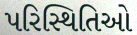
પરિસ્થિતિઓ